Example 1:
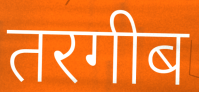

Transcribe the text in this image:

तरगीब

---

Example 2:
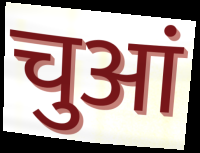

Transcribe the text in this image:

चुआं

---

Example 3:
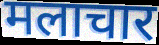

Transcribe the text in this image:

मलाचार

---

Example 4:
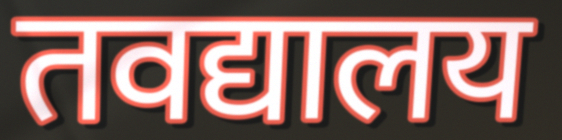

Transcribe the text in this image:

तवद्यालय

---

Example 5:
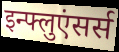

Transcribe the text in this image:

इन्फ्लुएंसर्स